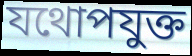
যথোপযুক্ত